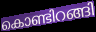
കൊണ്ടിറങ്ങി